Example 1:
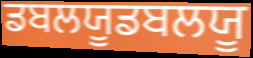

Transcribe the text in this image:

ਡਬਲਯੂਡਬਲਯੂ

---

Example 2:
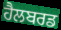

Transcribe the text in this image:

ਹੈਲਬਰਡ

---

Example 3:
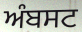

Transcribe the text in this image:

ਅੰਬਸਟ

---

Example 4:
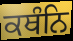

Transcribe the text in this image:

ਕਥੰਨਿ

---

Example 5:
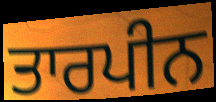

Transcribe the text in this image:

ਤਾਰਪੀਨ